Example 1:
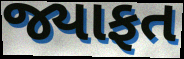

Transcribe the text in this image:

જ્યાફત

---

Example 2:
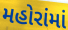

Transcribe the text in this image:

મહોરાંમાં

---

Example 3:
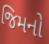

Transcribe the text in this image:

જિમનો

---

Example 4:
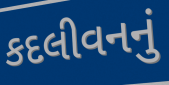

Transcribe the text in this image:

કદલીવનનું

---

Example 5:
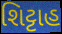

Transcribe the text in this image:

શિટ્ટાહ